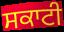
ਸਕਾਟੀ